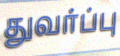
துவர்ப்பு